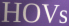
HOVs